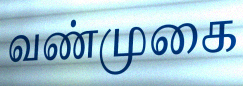
வண்முகை